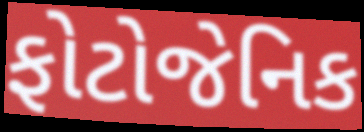
ફોટોજેનિક